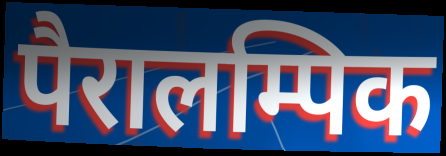
पैरालम्पिक